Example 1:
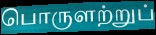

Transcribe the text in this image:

பொருளற்றுப்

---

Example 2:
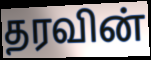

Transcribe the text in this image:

தரவின்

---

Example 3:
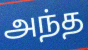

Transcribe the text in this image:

அந்த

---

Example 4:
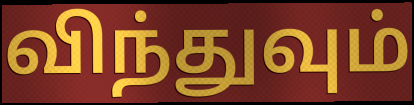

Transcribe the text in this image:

விந்துவும்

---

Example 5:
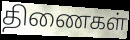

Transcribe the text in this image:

திணைகள்